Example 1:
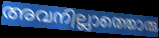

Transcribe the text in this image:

അവനില്ലാത്തൊരു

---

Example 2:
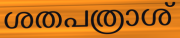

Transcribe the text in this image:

ശതപത്രാശ്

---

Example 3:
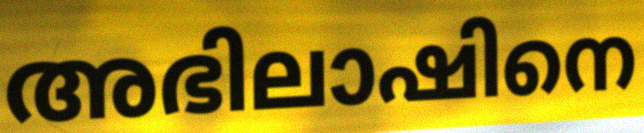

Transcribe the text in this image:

അഭിലാഷിനെ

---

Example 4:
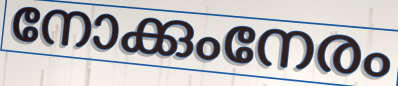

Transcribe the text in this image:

നോക്കുംനേരം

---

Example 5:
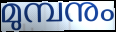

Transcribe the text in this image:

മുമ്പനും